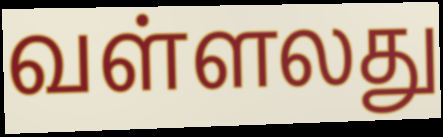
வள்ளலது